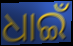
ଧାଇଁ